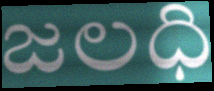
జలధి